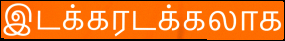
இடக்கரடக்கலாக